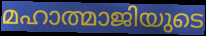
മഹാത്മാജിയുടെ